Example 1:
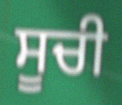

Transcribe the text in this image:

ਸੂਚੀ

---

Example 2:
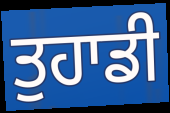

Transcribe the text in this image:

ਤੁਹਾਡੀ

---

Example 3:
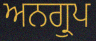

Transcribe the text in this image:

ਅਨਗ੍ਰੁਪ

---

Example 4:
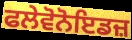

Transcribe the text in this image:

ਫਲੇਵੋਨੋਇਡਜ਼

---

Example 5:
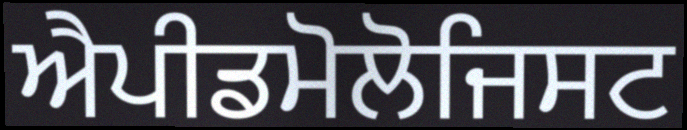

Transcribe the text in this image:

ਐਪੀਡਮੋਲੋਜਿਸਟ